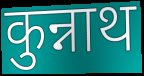
कुन्नाथ